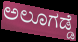
ಅಲೂಗಡ್ಡೆ